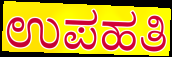
ಉಪಹತಿ